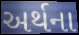
અર્થના